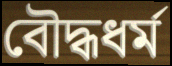
বৌদ্ধধর্ম